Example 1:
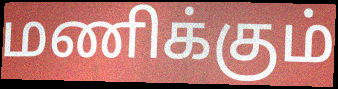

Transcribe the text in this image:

மணிக்கும்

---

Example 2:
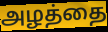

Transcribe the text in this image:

அழத்தை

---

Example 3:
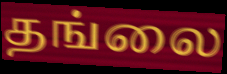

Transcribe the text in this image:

தங்லை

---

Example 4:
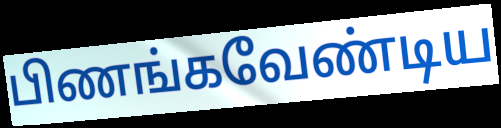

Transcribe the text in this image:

பிணங்கவேண்டிய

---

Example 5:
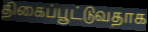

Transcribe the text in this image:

திகைப்பூட்டுவதாக